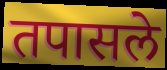
तपासले